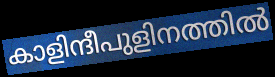
കാളിന്ദീപുളിനത്തിൽ